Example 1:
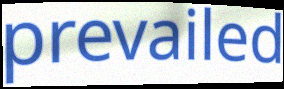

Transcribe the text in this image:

prevailed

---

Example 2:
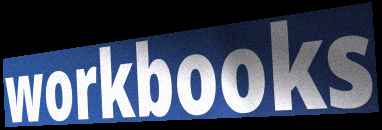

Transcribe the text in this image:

workbooks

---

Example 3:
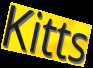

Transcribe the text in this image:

Kitts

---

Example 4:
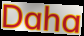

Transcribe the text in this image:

Daha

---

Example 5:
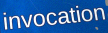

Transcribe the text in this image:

invocation